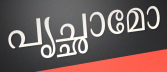
പൃച്ഛാമോ